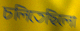
চলিতেছিলো